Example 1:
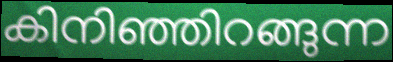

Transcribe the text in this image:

കിനിഞ്ഞിറങ്ങുന്ന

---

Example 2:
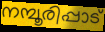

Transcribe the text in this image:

നമ്പൂരിപ്പാട്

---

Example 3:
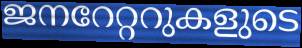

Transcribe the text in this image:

ജനറേറ്ററുകളുടെ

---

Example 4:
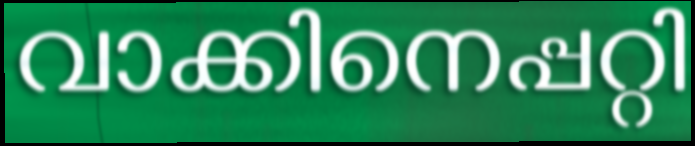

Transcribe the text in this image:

വാക്കിനെപ്പറ്റി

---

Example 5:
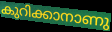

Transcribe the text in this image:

കുറിക്കാനാണു